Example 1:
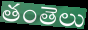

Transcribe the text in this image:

తంతెలు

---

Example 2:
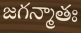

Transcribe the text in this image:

జగన్మాతః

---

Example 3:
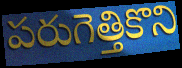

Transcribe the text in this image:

పరుగెత్తికొని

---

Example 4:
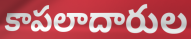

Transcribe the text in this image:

కాపలాదారుల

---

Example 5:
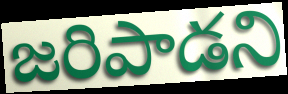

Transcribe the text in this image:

జరిపాడని